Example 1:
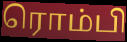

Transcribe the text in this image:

ரொம்பி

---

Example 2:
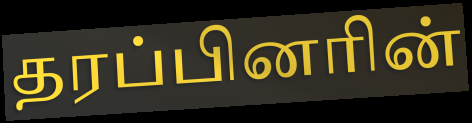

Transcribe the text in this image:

தரப்பினரின்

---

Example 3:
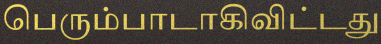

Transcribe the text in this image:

பெரும்பாடாகிவிட்டது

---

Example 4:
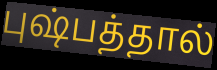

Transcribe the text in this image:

புஷ்பத்தால்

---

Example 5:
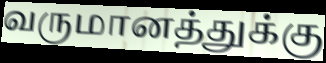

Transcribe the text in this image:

வருமானத்துக்கு